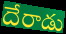
దేరాడు